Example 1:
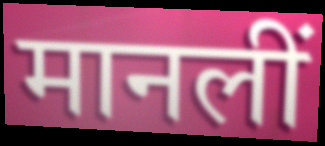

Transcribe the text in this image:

मानलीं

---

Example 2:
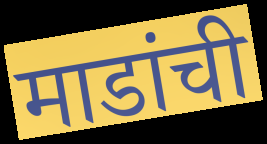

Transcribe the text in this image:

माडांची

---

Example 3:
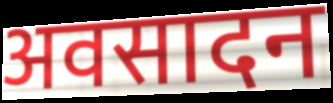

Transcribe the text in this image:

अवसादन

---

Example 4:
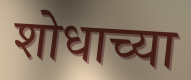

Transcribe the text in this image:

शोधाच्या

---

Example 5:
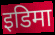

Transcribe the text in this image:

इडिमा